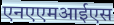
एनएएमआईएस